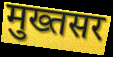
मुख्तसर